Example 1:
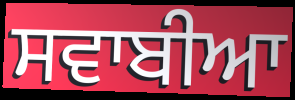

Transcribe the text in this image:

ਸਵਾਬੀਆ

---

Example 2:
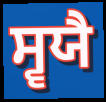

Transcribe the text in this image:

ਸ੍ਵਯੈ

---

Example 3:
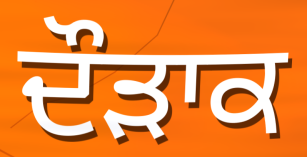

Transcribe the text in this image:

ਦੌੜਾਕ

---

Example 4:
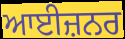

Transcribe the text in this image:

ਆਈਜ਼ਨਰ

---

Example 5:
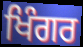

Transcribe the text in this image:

ਖਿੰਗਰ